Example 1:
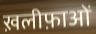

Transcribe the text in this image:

ख़लीफ़ाओं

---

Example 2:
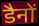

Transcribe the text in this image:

डैनों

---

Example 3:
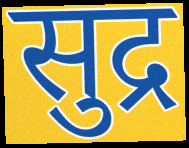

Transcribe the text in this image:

सुद्र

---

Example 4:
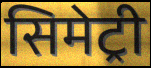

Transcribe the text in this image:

सिमेट्री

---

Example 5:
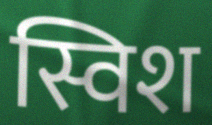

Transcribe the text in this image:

स्विश